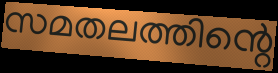
സമതലത്തിന്റെ